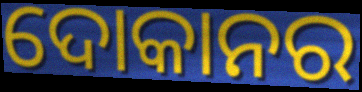
ଦୋକାନର